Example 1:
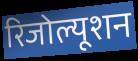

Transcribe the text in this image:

रिजोल्‍यूशन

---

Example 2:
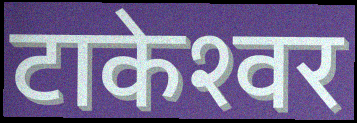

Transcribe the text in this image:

टाकेश्वर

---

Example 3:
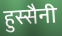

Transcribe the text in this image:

हुस्सैनी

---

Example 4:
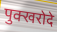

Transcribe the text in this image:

पुक्खरोदे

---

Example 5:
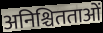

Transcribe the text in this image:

अनिश्चितताओं